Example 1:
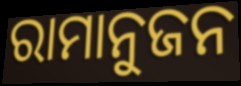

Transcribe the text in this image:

ରାମାନୁଜନ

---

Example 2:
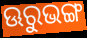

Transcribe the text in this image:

ଊରୁଭଙ୍ଗ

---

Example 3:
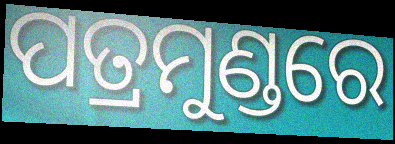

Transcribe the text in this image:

ପତ୍ରମୁଣ୍ଡରେ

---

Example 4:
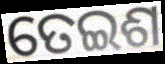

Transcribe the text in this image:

ତେଇଶ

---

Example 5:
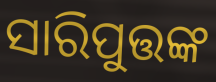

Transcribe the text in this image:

ସାରିପୁତ୍ତଙ୍କ